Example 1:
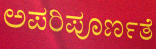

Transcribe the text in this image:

ಅಪರಿಪೂರ್ಣತೆ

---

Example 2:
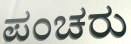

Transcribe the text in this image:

ಪಂಚರು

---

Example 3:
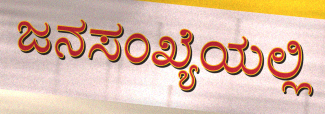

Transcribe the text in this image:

ಜನಸಂಖ್ಯೆಯಲ್ಲಿ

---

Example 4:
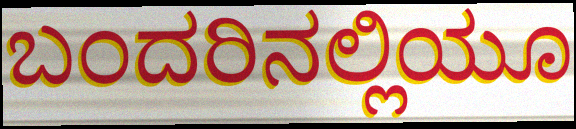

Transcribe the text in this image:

ಬಂದರಿನಲ್ಲಿಯೂ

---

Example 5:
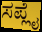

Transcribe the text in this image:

ಸಪ್ಲೈ